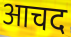
आचद